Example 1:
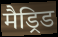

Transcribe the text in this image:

मैड्रिड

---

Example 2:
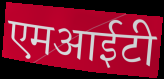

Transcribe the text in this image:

एमआईटी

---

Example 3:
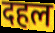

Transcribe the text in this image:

दहल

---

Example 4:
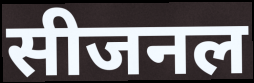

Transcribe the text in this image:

सीजनल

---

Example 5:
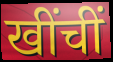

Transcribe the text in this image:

खींचीं